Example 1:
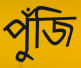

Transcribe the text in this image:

পুঁজি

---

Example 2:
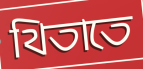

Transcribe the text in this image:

থিতাতে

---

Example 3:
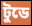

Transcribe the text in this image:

টুডে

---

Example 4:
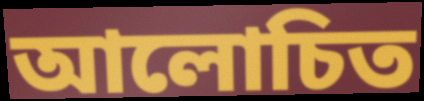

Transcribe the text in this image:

আলোচিত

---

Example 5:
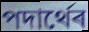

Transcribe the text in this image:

পদাৰ্থেৰ